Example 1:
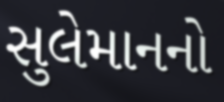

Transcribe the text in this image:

સુલેમાનનો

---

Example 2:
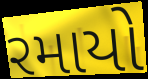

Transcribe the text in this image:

રમાયો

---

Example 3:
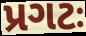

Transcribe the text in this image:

પ્રગટઃ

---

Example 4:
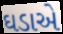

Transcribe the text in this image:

ઘડાએ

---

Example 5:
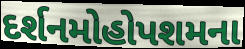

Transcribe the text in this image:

દર્શનમોહોપશમના